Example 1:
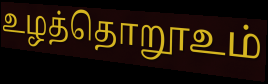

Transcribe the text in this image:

உழத்தொறூஉம்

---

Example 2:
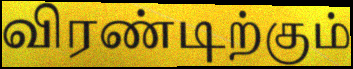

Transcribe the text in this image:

விரண்டிற்கும்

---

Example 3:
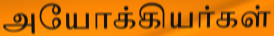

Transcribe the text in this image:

அயோக்கியர்கள்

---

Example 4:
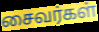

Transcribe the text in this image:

சைவர்கள்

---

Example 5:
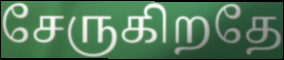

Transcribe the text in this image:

சேருகிறதே